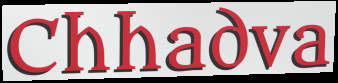
Chhadva